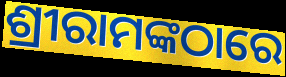
ଶ୍ରୀରାମଙ୍କଠାରେ